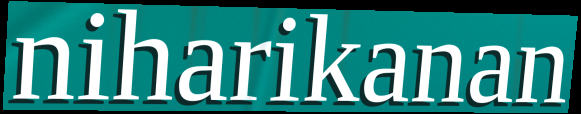
niharikanan